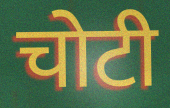
चोटी